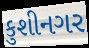
કુશીનગર